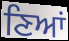
ਣਿਆਂ